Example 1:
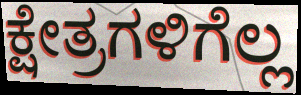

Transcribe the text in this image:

ಕ್ಷೇತ್ರಗಳಿಗೆಲ್ಲ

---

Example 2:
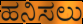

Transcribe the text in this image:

ಹನಿಸಲು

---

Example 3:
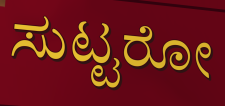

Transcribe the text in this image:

ಸುಟ್ಟರೋ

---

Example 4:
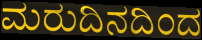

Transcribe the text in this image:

ಮರುದಿನದಿಂದ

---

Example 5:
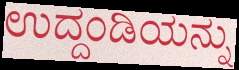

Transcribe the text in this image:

ಉದ್ದಂಡಿಯನ್ನು